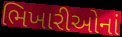
ભિખારીઓનાં